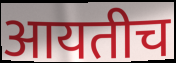
आयतीच